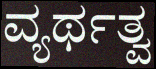
ವ್ಯರ್ಥತ್ವ